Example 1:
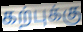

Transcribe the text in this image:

கற்புக்கு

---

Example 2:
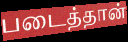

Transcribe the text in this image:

படைத்தான்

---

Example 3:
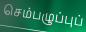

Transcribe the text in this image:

செம்பழுப்புப்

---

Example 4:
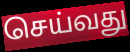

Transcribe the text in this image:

செய்வது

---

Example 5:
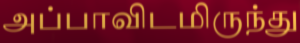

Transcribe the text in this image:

அப்பாவிடமிருந்து